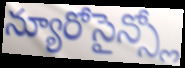
న్యూరోసైన్స్లో